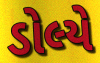
ડોલ્યે